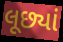
લૂછ્યાં